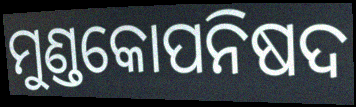
ମୁଣ୍ଡକୋପନିଷଦ